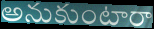
అనుకుంటారా